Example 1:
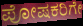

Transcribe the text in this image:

ಪೋಷಕರಿಗೇ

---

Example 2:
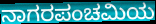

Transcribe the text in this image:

ನಾಗರಪಂಚಮಿಯ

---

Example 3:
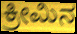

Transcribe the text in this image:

ಕ್ರೀಮಿನ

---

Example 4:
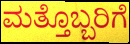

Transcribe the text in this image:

ಮತ್ತೊಬ್ಬರಿಗೆ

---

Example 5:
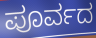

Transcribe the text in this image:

ಪೂರ್ವದ